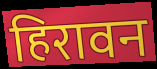
हिरावन